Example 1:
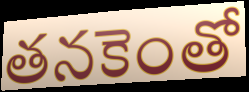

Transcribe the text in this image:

తనకెంతో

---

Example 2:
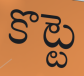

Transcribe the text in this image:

కొట్టె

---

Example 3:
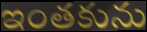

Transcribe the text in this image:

ఇంతకును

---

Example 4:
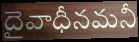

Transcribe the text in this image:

దైవాధీనమనీ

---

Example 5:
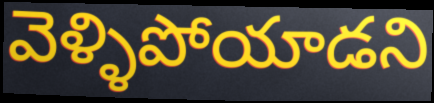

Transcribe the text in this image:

వెళ్ళిపోయాడని